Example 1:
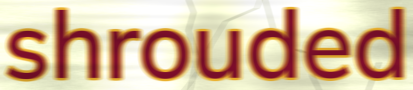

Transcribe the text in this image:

shrouded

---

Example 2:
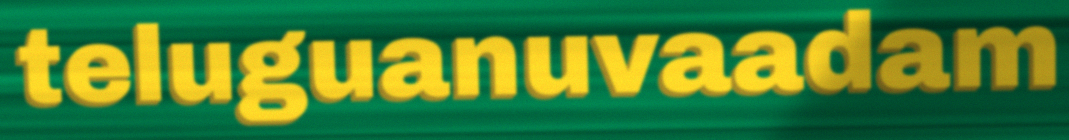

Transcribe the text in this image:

teluguanuvaadam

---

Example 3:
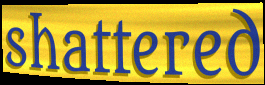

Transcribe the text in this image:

shattered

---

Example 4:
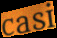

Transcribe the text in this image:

casi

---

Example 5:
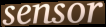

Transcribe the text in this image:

sensor